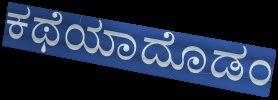
ಕಥೆಯಾದೊಡಂ